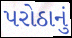
પરોઠાનું